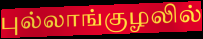
புல்லாங்குழலில்